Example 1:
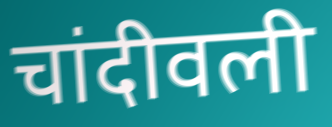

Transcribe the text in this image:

चांदीवली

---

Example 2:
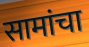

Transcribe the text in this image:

सामांचा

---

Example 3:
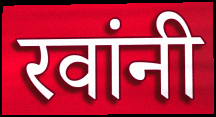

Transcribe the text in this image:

रवांनी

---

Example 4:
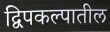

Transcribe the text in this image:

द्विपकल्पातील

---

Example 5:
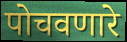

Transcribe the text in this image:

पोचवणारे